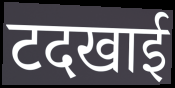
टदखाई